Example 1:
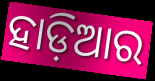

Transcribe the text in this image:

ହାଡ଼ିଆର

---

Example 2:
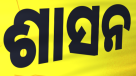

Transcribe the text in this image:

ଶାସନ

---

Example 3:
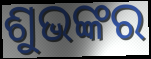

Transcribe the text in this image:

ଶୁଭଙ୍କର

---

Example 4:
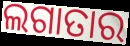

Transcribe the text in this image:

ଲଗାତାର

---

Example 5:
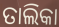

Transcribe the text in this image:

ତାଲିକା